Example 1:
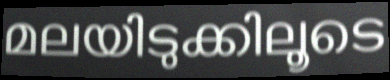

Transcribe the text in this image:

മലയിടുക്കിലൂടെ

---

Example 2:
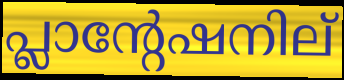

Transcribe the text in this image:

പ്ലാന്റേഷനില്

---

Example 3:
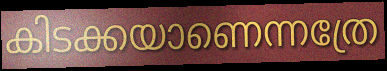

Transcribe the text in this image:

കിടക്കയാണെന്നത്രേ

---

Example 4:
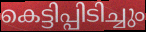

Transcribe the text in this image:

കെട്ടിപ്പിടിച്ചും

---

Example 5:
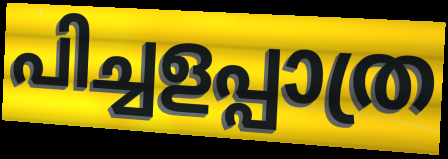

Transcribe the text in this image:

പിച്ചളപ്പാത്ര